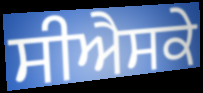
ਸੀਐਸਕੇ